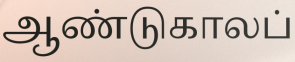
ஆண்டுகாலப்